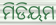
ମିଡିୟମ